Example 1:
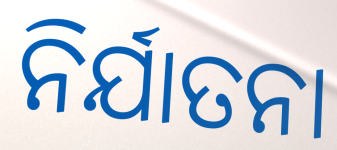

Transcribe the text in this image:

ନିର୍ଯାତନା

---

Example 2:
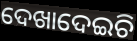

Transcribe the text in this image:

ଦେଖାଦେଇଚି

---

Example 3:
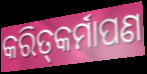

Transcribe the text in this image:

କରିତ୍‌କର୍ମାପଣ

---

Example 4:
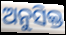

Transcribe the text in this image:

ଅନୁସିକ୍ତ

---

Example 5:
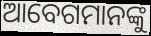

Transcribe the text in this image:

ଆବେଗମାନଙ୍କୁ